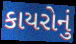
કાયરોનું